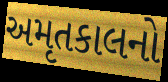
અમૃતકાલનો